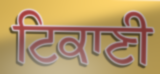
ਟਿਕਾਣੀ